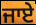
ਜਾਏੇ